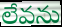
లేవను